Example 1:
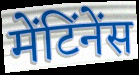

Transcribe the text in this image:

मेंटिंनेंस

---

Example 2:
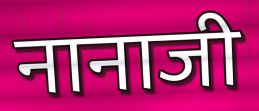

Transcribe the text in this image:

नानाजी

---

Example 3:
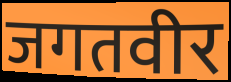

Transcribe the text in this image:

जगतवीर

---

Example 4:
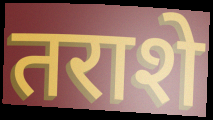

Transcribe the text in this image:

तराशे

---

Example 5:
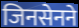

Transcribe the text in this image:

जिनसेनने